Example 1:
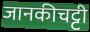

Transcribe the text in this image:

जानकीचट्टी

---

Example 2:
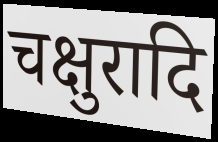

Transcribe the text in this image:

चक्षुरादि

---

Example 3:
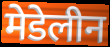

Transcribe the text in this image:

मेडेलीन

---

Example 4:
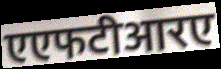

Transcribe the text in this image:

एएफटीआरए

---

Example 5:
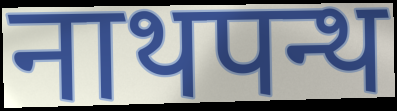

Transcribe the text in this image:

नाथपन्थ